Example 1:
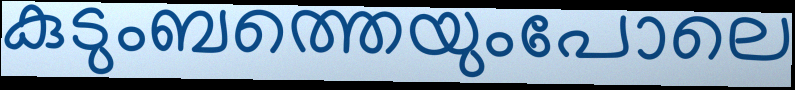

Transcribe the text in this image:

കുടുംബത്തെയുംപോലെ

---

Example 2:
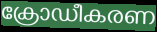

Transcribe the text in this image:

ക്രോഡീകരണ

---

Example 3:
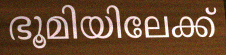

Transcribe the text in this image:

ഭൂമിയിലേക്ക്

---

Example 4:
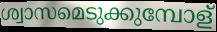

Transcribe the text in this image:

ശ്വാസമെടുക്കുമ്പോള്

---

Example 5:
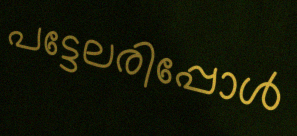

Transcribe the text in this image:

പട്ടേലരിപ്പോൾ